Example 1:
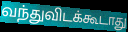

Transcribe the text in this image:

வந்துவிடக்கூடாது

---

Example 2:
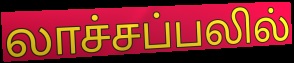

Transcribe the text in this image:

லாச்சப்பலில்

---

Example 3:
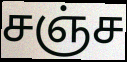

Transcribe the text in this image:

சஞ்ச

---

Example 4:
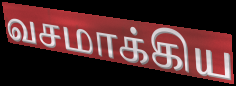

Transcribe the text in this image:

வசமாக்கிய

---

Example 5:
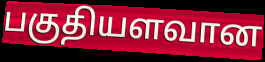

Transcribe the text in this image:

பகுதியளவான